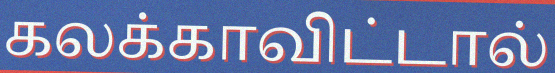
கலக்காவிட்டால்